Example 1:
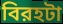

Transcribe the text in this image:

বিরহটা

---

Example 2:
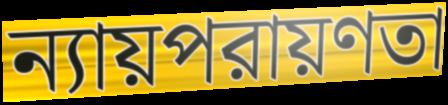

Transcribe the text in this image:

ন্যায়পরায়ণতা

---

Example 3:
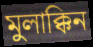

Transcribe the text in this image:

মুলাক্কিন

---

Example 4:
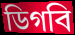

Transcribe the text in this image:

ডিগবি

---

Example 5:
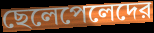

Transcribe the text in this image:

ছেলেপেলেদের